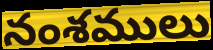
నంశములు